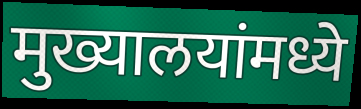
मुख्यालयांमध्ये